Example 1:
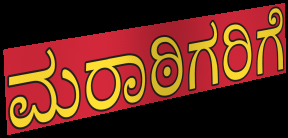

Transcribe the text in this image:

ಮರಾಠಿಗರಿಗೆ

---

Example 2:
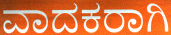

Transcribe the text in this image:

ವಾದಕರಾಗಿ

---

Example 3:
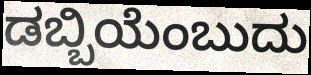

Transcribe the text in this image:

ಡಬ್ಬಿಯೆಂಬುದು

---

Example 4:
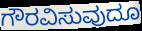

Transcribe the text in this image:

ಗೌರವಿಸುವುದೂ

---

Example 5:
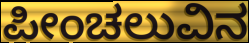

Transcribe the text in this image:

ಪೀಂಚಲುವಿನ